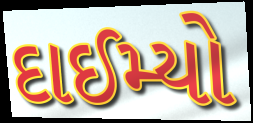
દાઈમ્યો